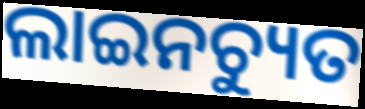
ଲାଇନଚ୍ୟୁତ